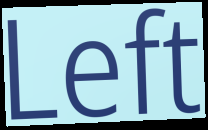
Left